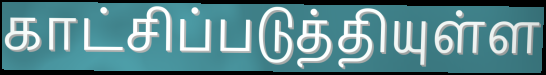
காட்சிப்படுத்தியுள்ள